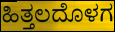
ಹಿತ್ತಲದೊಳಗ